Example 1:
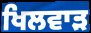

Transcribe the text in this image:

ਖਿਲਵਾੜ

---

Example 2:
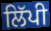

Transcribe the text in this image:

ਲਿੱਪੀ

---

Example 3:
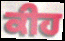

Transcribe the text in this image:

ਕੀਹ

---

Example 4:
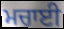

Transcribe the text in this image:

ਮਚਾਈ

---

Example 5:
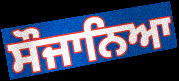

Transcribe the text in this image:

ਸੌਜਾਨਿਆ